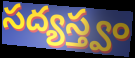
సద్యస్త్వం